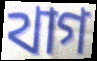
থাগ